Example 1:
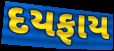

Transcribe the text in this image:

દયફાય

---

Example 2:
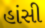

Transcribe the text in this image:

હાંસી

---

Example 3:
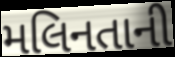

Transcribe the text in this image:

મલિનતાની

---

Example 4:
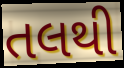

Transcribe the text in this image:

તલથી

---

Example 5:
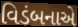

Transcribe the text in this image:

વિડંબનાએ